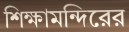
শিক্ষামন্দিরের